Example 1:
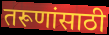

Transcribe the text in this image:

तरूणांसाठी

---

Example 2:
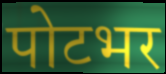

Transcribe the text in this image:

पोटभर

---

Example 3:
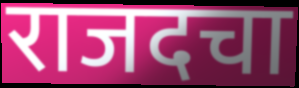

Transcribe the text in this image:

राजदचा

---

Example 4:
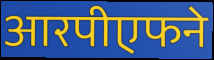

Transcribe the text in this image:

आरपीएफने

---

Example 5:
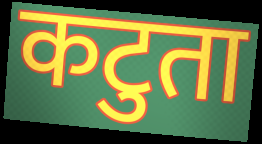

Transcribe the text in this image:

कटुता